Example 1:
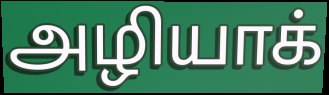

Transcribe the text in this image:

அழியாக்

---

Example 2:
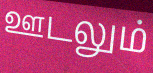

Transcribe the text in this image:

ஊடலும்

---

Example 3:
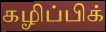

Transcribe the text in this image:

கழிப்பிக்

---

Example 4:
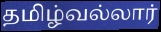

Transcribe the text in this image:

தமிழ்வல்லார்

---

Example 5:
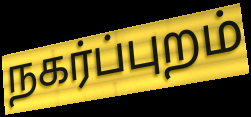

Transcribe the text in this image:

நகர்ப்புறம்